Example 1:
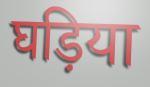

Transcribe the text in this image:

घड़िया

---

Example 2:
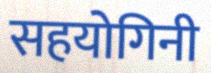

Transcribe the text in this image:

सहयोगिनी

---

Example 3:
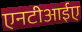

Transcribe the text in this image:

एनटीआईए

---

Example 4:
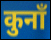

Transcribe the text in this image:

कुनाँ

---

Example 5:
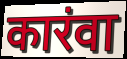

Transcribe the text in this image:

कारंवा